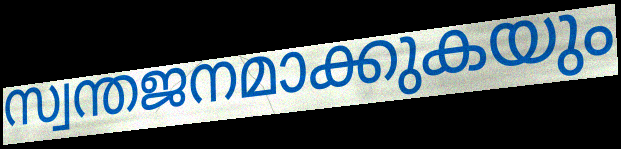
സ്വന്തജനമാക്കുകയും